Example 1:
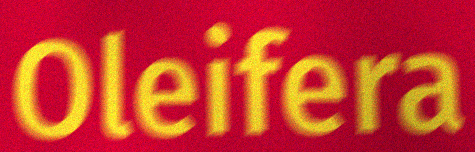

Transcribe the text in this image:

Oleifera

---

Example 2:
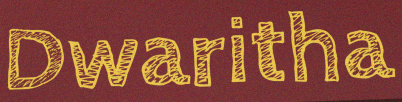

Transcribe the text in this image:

Dwaritha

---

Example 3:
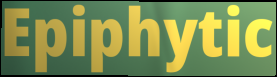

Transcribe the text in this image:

Epiphytic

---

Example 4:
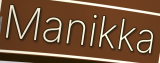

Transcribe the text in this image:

Manikka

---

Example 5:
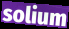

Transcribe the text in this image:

solium